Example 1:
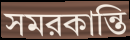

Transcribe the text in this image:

সমরকান্তি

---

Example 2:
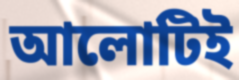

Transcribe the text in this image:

আলোটিই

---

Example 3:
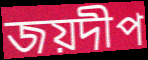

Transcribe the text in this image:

জয়দীপ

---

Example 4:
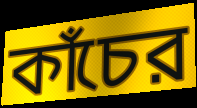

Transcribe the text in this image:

কাঁচের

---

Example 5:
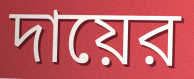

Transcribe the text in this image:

দায়ের